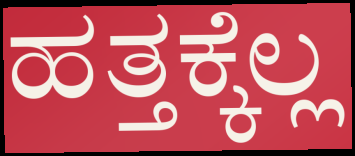
ಹತ್ತಕ್ಕೆಲ್ಲ